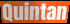
Quintan